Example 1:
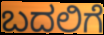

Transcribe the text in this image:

ಬದಲಿಗೆ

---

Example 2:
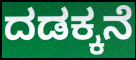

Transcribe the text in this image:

ದಡಕ್ಕನೆ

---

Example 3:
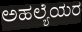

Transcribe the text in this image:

ಅಹಲ್ಯೆಯರ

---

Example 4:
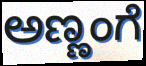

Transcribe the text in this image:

ಅಣ್ಣಂಗೆ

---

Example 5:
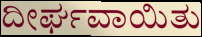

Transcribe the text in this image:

ದೀರ್ಘವಾಯಿತು